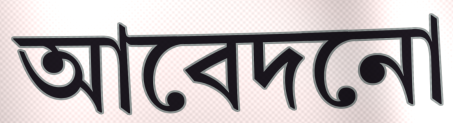
আবেদনো